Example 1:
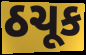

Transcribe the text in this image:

ઠચૂક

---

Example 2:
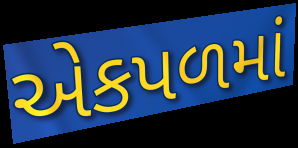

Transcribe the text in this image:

એકપળમાં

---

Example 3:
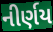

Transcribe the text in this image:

નીર્ણય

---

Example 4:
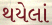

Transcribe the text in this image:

થયેલાં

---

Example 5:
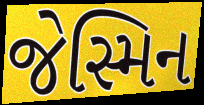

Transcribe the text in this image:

જેસ્મિન